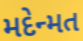
મદેન્મત